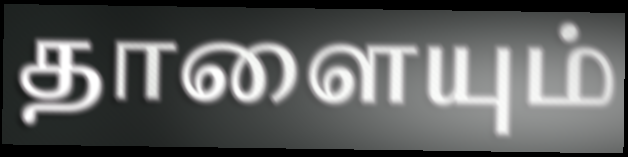
தாளையும்